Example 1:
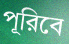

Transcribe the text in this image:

পূরিবে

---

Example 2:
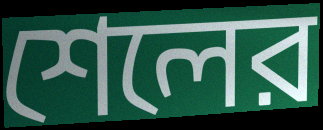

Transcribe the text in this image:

শেলের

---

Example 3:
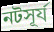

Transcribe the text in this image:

নটসূর্য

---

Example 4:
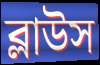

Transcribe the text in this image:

ব্লাউস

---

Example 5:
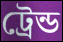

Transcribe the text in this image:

ট্রেন্ড